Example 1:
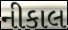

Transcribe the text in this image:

નીકાલ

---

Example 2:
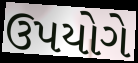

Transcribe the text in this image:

ઉપયોગે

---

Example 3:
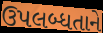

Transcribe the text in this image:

ઉપલબ્ધતાને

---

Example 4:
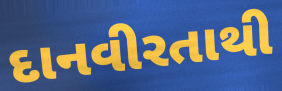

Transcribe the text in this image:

દાનવીરતાથી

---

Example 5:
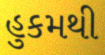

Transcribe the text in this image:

હુકમથી